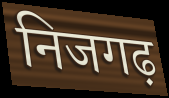
निजगढ़